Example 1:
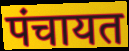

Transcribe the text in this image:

पंचायत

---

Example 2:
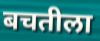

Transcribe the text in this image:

बचतीला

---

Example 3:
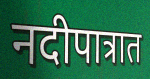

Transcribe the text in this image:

नदीपात्रात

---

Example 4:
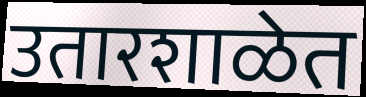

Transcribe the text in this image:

उतारशाळेत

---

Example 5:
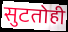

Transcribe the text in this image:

सुटतोही